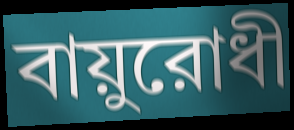
বায়ুরোধী